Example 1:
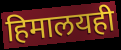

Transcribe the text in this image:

हिमालयही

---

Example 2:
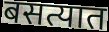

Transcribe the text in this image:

बसत्यात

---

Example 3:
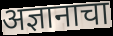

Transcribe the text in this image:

अज्ञानाचा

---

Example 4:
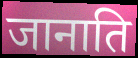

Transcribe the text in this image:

जानाति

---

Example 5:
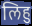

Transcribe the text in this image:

लिहु